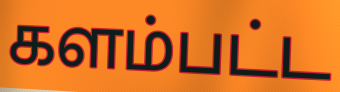
களம்பட்ட